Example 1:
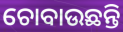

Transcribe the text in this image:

ଚୋବାଉଛନ୍ତି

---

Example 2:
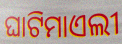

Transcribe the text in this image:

ଘାଟିମାଏଲୀ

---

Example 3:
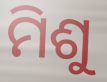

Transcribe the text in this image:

ମିଶୁ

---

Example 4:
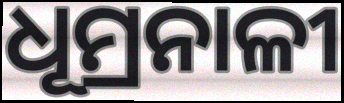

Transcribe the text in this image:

ଧୂମ୍ରନାଳୀ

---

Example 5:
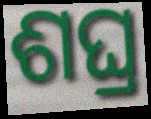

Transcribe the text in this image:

ଶଘ୍ର